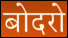
बोदरो